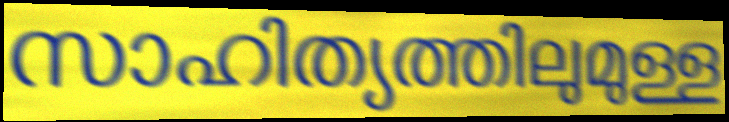
സാഹിത്യത്തിലുമുള്ള